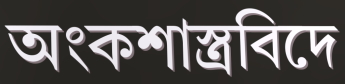
অংকশাস্ত্ৰবিদে